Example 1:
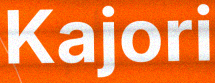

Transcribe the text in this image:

Kajori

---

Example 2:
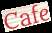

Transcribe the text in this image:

Cafe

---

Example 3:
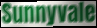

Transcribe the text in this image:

Sunnyvale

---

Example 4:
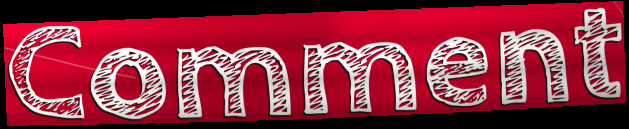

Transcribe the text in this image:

Comment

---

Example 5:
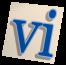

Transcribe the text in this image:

vi